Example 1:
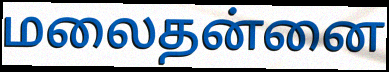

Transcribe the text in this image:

மலைதன்னை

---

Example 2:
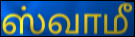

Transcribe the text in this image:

ஸ்வாமீ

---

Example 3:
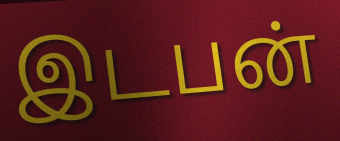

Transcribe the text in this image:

இடபன்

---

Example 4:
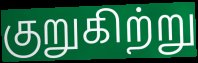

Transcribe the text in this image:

குறுகிற்று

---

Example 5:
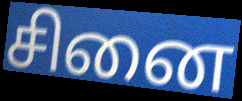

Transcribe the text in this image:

சினை